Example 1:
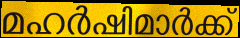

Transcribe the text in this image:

മഹർഷിമാർക്ക്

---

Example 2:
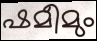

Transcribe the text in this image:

ഷമീമും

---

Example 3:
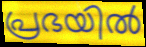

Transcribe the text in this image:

പ്രഭയിൽ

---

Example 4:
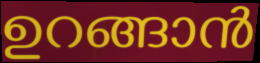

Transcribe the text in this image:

ഉറങ്ങാൻ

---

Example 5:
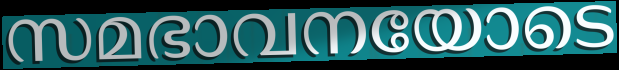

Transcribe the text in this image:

സമഭാവനയോടെ